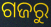
ଗଜରୁ